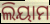
ଲିୟାମ